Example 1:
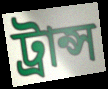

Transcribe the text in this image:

ট্রান্স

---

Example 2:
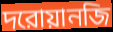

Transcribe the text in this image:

দরোয়ানজি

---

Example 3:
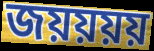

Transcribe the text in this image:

জয়য়য়য়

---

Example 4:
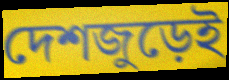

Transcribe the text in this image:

দেশজুড়েই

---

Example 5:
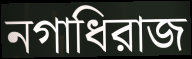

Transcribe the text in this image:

নগাধিরাজ